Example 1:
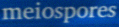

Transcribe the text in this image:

meiospores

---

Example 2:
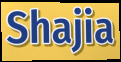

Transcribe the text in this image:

Shajia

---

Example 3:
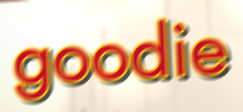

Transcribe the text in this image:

goodie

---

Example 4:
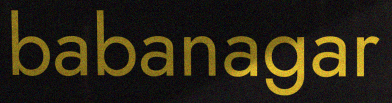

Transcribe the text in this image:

babanagar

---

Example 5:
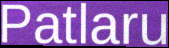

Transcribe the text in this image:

Patlaru